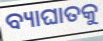
ବ୍ୟାଘାତକୁ